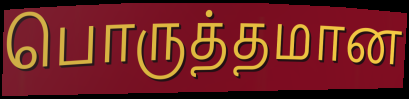
பொருத்தமான